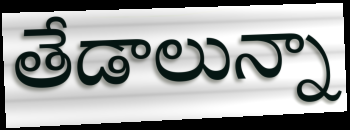
తేడాలున్నా